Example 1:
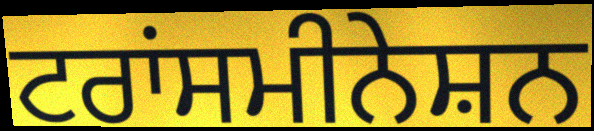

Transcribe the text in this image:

ਟਰਾਂਸਮੀਨੇਸ਼ਨ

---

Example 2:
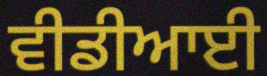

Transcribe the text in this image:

ਵੀਡੀਆਈ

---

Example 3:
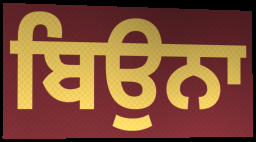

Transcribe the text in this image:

ਬਿਉਨਾ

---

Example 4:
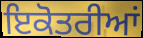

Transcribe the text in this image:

ਇਕੋਤਰੀਆਂ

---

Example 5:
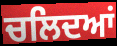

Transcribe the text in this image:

ਚਲਿਦਆਂ